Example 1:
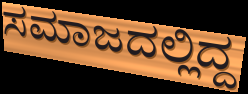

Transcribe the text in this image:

ಸಮಾಜದಲ್ಲಿದ್ದ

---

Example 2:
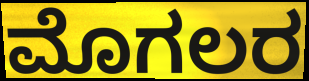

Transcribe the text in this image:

ಮೊಗಲರ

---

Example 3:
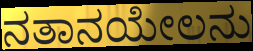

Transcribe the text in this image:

ನತಾನಯೇಲನು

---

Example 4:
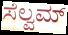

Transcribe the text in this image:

ಸೆಲ್ವಮ್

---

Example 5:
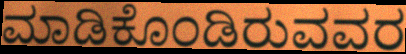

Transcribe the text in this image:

ಮಾಡಿಕೊಂಡಿರುವವರ